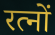
रत्नों